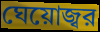
ঘেয়োজ্বর